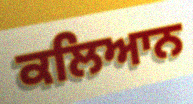
ਕਲਿਆਨ